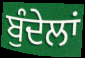
ਬੁੰਦੇਲਾਂ